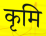
कृमि